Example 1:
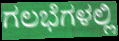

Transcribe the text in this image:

ಗಲಭೆಗಳಲ್ಲಿ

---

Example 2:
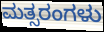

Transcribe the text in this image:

ಮತ್ಸರಂಗಳು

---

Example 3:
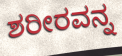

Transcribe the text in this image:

ಶರೀರವನ್ನ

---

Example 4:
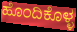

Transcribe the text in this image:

ಹೊಂದಿಕೊಳ್ಳ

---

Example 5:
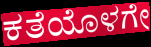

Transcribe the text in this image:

ಕತೆಯೊಳಗೇ